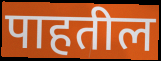
पाहतील